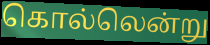
கொல்லென்று